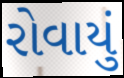
રોવાયું